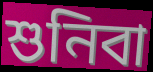
শুনিবা